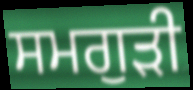
ਸਮਗੁੜੀ